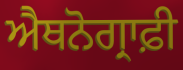
ਐਥਨੋਗ੍ਰਾਫ਼ੀ